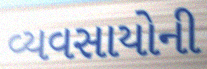
વ્યવસાયોની